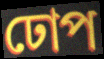
ঢোপ